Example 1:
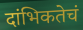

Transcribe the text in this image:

दांभिकतेचं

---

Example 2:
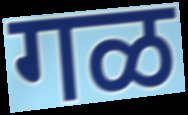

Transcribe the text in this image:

गळ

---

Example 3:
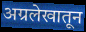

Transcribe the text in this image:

अग्रलेखातून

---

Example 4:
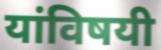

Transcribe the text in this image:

यांविषयी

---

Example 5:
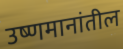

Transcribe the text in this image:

उष्णमानांतील